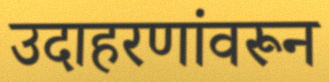
उदाहरणांवरून